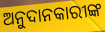
ଅନୁଦାନକାରୀଙ୍କ